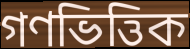
গণভিত্তিক